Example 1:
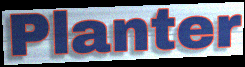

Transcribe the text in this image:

Planter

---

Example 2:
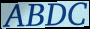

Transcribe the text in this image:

ABDC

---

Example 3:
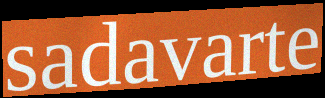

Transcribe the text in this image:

sadavarte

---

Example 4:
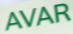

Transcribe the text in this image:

AVAR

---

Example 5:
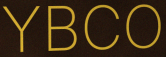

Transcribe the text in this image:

YBCO